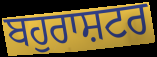
ਬਹੁਰਾਸ਼ਟਰ